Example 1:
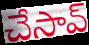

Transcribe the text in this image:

చేసావ్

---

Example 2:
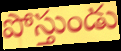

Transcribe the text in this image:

పోస్తుండు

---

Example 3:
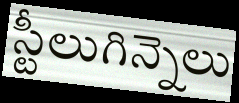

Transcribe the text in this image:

స్టీలుగిన్నెలు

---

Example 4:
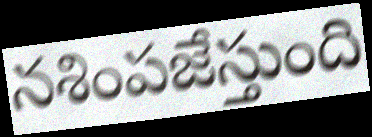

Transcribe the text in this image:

నశింపజేస్తుంది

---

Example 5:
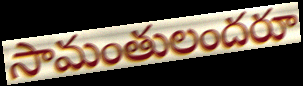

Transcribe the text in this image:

సామంతులందరూ